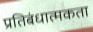
प्रतिबंधात्मकता